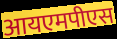
आयएमपीएस